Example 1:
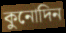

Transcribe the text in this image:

কুনোদিন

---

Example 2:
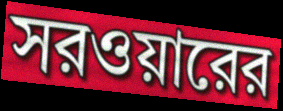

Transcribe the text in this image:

সরওয়ারের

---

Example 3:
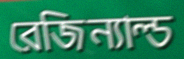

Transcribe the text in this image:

রেজিন্যাল্ড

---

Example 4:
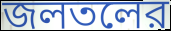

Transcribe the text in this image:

জলতলের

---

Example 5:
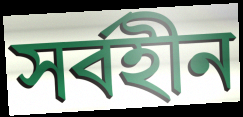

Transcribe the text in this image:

সর্বহীন